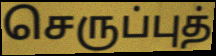
செருப்புத்